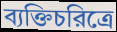
ব্যক্তিচরিত্রে